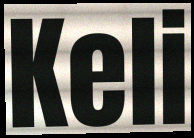
Keli